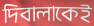
দিবালাকেই